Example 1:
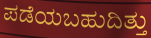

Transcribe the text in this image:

ಪಡೆಯಬಹುದಿತ್ತು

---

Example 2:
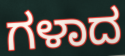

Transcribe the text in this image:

ಗಳಾದ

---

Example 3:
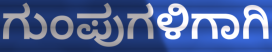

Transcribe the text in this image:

ಗುಂಪುಗಳಿಗಾಗಿ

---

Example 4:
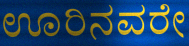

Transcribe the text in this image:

ಊರಿನವರೇ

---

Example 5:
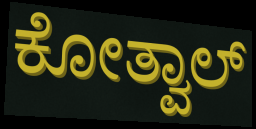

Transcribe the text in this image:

ಕೋತ್ವಾಲ್